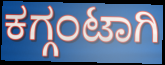
ಕಗ್ಗಂಟಾಗಿ